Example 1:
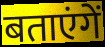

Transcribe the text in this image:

बताएंगें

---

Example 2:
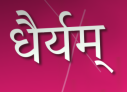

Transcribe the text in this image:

धैर्यम्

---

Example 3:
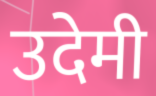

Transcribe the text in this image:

उदेमी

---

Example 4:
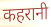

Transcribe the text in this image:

कहरानी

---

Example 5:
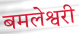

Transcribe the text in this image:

बमलेश्वरी